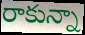
రాకున్నా